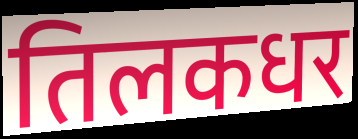
तिलकधर